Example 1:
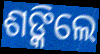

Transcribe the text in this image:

ଶଙ୍କିଲେ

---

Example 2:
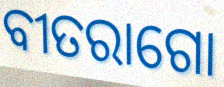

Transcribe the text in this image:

ବୀତରାଗୋ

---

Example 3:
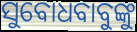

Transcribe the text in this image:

ସୁବୋଧବାବୁଙ୍କୁ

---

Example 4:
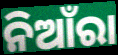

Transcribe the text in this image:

ନିଆଁରା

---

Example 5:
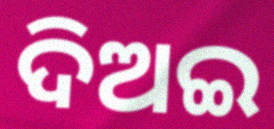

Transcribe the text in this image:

ଦିଅଇ